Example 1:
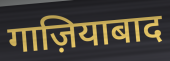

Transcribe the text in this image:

गाज़ियाबाद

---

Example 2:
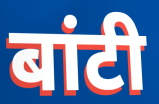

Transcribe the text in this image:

बांटी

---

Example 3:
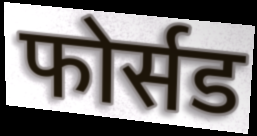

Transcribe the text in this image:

फोर्सड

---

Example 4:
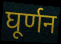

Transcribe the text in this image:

घूर्णन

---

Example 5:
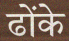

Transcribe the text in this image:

ढोंके